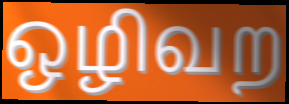
ஒழிவற